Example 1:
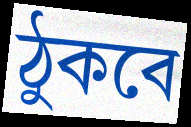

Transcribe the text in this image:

ঠুকবে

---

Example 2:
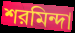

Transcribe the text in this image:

শরমিন্দা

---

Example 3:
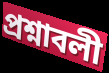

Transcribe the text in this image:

প্রশ্নাবলী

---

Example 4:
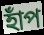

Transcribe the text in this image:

হাঁপ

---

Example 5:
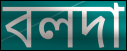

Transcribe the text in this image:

বলদা